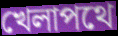
খেলাপথে